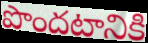
పొందటానికి